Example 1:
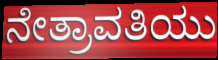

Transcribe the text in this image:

ನೇತ್ರಾವತಿಯು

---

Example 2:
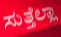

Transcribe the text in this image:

ಸುತ್ತೆಲ್ಲಾ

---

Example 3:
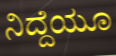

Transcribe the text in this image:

ನಿದ್ದೆಯೂ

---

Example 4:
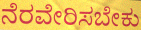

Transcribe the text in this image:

ನೆರವೇರಿಸಬೇಕು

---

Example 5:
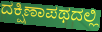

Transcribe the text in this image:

ದಕ್ಷಿಣಾಪಥದಲ್ಲಿ